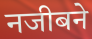
नजीबने